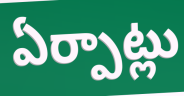
ఏర్పాట్లు